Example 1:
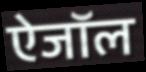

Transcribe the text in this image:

ऐजॉल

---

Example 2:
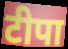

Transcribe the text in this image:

टीपा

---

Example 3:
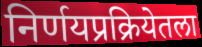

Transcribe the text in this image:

निर्णयप्रक्रियेतला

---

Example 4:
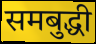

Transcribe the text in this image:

समबुद्धी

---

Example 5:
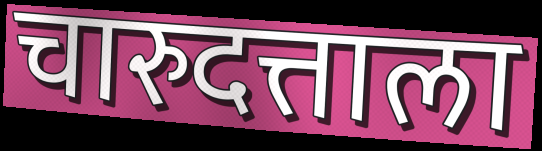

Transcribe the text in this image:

चारुदत्ताला